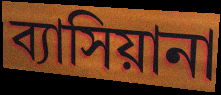
ব্যাসিয়ানা